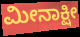
ಮೀನಾಕ್ಷೀ